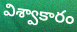
విశ్వాకారం